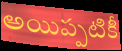
అయిప్పటికీ